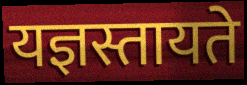
यज्ञस्तायते